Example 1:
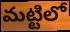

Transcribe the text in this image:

మట్టిలో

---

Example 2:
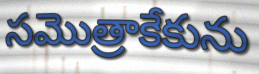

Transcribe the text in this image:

సమొత్రాకేకును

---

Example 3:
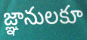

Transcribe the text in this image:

జ్ఞానులకూ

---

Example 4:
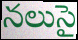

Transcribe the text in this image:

నలుసై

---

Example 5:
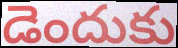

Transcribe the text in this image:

డెందుకు